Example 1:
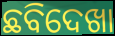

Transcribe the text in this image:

ଛବିଦେଖା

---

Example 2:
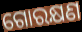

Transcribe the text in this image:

ଗୋରକ୍ଷଣ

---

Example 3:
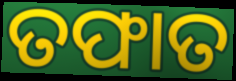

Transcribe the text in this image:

ତଫାତ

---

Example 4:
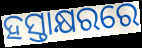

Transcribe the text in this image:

ହସ୍ତାକ୍ଷରରେ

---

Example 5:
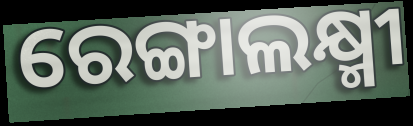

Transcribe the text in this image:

ରେଙ୍ଗାଲକ୍ଷ୍ମୀ